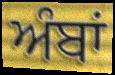
ਅੰਬਾਂ